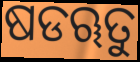
ଷଡୠତୁ